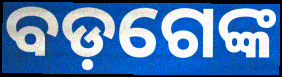
ବଡ଼ଗେଙ୍କ